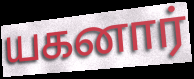
யகனார்